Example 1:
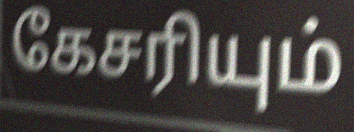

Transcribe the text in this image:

கேசரியும்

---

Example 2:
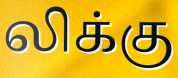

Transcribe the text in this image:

லிக்கு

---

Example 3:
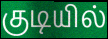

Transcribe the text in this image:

குடியில்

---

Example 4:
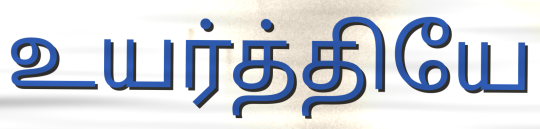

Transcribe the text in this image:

உயர்த்தியே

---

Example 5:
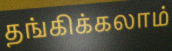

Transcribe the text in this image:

தங்கிக்கலாம்